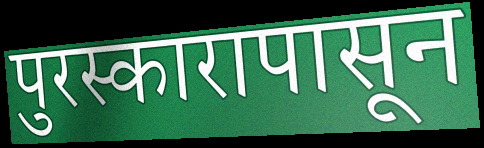
पुरस्कारापासून